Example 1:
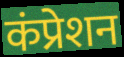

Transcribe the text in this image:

कंप्रेशन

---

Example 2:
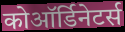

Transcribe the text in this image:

कोऑर्डिनेटर्स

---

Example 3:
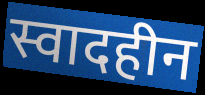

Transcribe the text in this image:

स्वादहीन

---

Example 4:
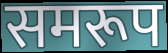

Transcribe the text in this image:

समरूप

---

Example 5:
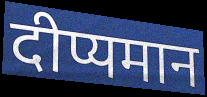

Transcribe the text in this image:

दीप्यमान